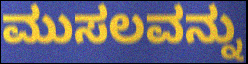
ಮುಸಲವನ್ನು